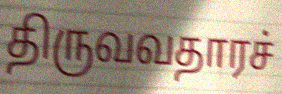
திருவவதாரச்